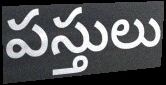
పస్తులు